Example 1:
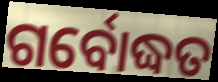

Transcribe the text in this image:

ଗର୍ବୋଦ୍ଧତ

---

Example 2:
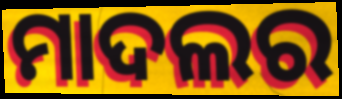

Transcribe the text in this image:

ମାଦଲର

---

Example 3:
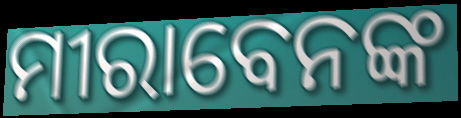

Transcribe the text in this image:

ମୀରାବେନଙ୍କ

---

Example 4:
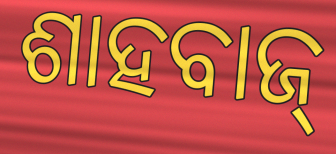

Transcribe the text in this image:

ଶାହବାଜ୍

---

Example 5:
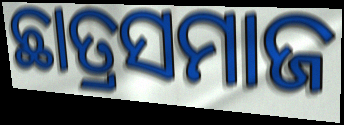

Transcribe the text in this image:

ଛାତ୍ରସମାଜ